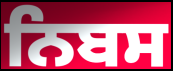
ਨਿਬਸ